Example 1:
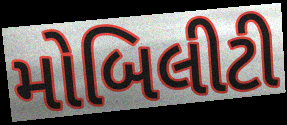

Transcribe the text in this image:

મોબિલીટી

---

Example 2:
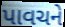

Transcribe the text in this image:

પાવચને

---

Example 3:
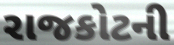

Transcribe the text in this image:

રાજકોટની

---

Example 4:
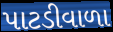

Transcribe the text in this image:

પાટડીવાળા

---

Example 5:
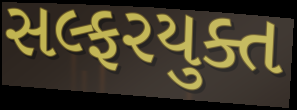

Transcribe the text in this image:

સલ્ફરયુક્ત